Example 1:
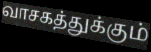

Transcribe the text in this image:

வாசகத்துக்கும்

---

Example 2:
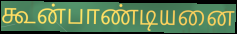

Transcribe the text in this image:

கூன்பாண்டியனை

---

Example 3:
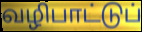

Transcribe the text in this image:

வழிபாட்டுப்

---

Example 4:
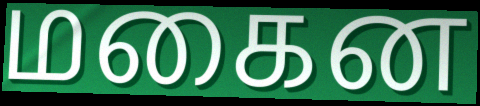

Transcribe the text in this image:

மகைன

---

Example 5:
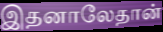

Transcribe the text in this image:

இதனாலேதான்